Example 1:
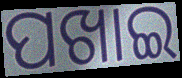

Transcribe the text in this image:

ପଖାଇ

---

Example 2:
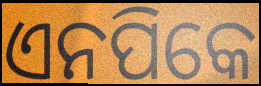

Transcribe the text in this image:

ଏନପିକେ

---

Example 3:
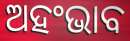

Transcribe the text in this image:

ଅହଂଭାବ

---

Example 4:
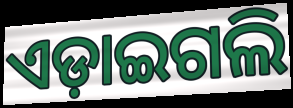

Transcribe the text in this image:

ଏଡ଼ାଇଗଲି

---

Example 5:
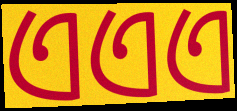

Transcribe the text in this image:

ଏଏଏ